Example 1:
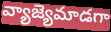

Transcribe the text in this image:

వ్యాజ్యెమాడగా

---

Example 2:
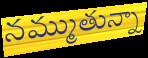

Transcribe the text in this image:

నమ్ముతున్నా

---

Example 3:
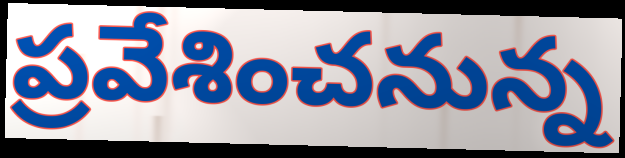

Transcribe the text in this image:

ప్రవేశించనున్న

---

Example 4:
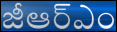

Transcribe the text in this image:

జీఆర్ఎం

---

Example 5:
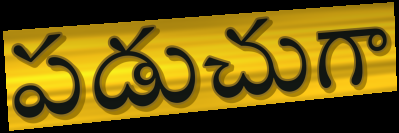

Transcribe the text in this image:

పడుచుగా